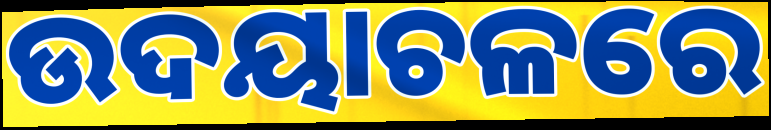
ଉଦୟାଚଳରେ